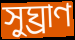
সুঘ্রাণ